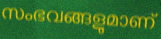
സംഭവങ്ങളുമാണ്